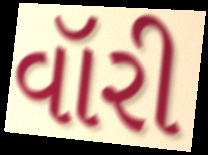
વૉરી